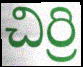
చిర్రి